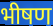
भीषण